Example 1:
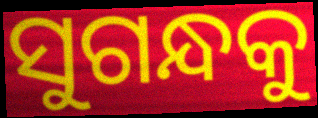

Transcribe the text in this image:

ସୁଗନ୍ଧକୁ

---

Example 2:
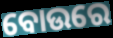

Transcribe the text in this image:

ବୋଉରେ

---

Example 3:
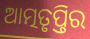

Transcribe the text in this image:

ଆତ୍ମତୃପ୍ତିର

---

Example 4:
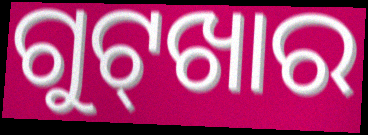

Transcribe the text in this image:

ଗୁଟ୍‌ଖାର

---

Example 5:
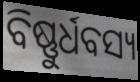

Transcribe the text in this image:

ବିଷ୍ଣୁର୍ଧବସ୍ୟ